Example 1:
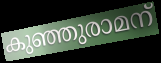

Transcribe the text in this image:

കുഞ്ഞുരാമന്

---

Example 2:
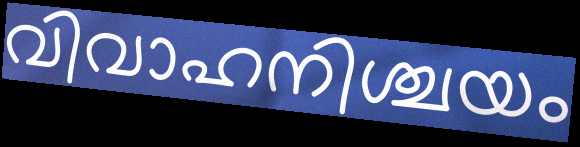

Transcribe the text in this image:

വിവാഹനിശ്ചയം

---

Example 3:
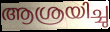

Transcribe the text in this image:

ആശ്രയിച്ചു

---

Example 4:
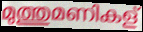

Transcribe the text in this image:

മുത്തുമണികള്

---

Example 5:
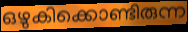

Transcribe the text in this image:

ഒഴുകിക്കൊണ്ടിരുന്ന